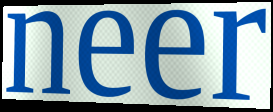
neer